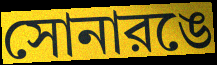
সোনারঙে